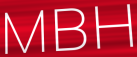
MBH